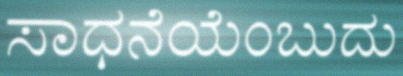
ಸಾಧನೆಯೆಂಬುದು